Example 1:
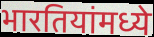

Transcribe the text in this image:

भारतियांमध्ये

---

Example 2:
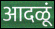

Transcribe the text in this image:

आदळूं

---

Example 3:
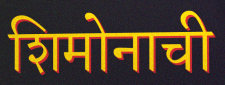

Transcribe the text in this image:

शिमोनाची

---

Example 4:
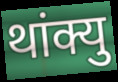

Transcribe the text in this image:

थांक्यु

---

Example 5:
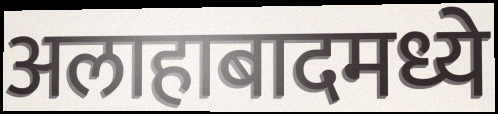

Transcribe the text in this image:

अलाहाबादमध्ये